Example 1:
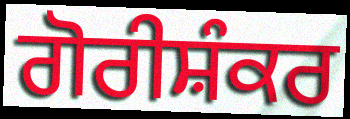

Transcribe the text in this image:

ਗੋਰੀਸ਼ੰਕਰ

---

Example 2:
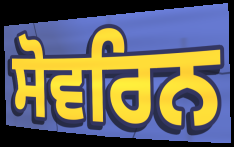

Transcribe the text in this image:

ਸੋਵਰਿਨ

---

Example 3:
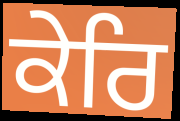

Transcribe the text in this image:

ਕੇਰਿ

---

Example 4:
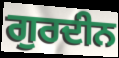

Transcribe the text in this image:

ਗੁਰਦੀਨ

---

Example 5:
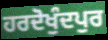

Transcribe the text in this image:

ਹਰਦੋਖੁੰਦਪੁਰ